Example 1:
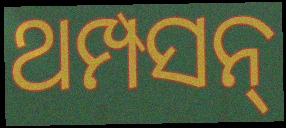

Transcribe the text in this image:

ଥମ୍ପସନ୍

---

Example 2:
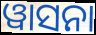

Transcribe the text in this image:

ୱାସନା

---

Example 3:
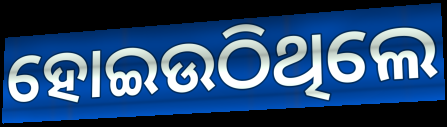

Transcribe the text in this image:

ହୋଇଉଠିଥିଲେ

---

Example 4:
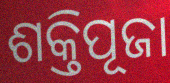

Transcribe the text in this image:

ଶକ୍ତିପୂଜା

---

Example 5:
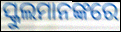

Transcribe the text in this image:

ସ୍କୁଲମାନଙ୍କରେ